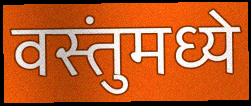
वस्तुंमध्ये